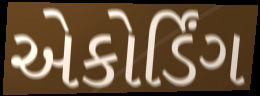
એકોર્ડિંગ